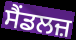
ਸੈਂਡਲਜ਼